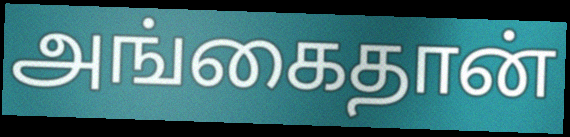
அங்கைதான்